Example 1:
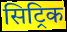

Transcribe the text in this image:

सिट्रिक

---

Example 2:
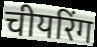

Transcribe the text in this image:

चीयरिंग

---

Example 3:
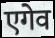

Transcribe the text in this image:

एगेव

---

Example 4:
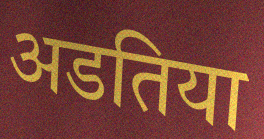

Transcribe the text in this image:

अडतिया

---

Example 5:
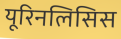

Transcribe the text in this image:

यूरिनलिसिस